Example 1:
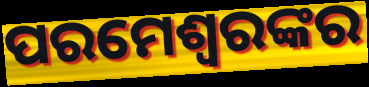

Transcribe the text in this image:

ପରମେଶ୍ଵରଙ୍କର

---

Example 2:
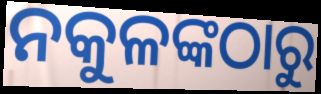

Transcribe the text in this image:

ନକୁଳଙ୍କଠାରୁ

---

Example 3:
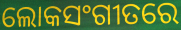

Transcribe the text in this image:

ଲୋକସଂଗୀତରେ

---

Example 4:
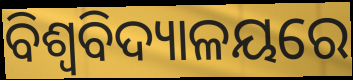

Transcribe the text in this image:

ବିଶ୍ୱବିଦ୍ୟାଳୟରେ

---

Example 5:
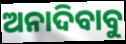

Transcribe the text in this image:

ଅନାଦିବାବୁ